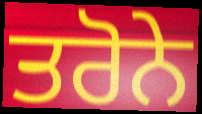
ਤਰੋਨੇ